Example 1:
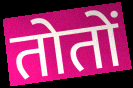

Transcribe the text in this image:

तोतों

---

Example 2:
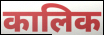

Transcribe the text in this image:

कालिक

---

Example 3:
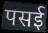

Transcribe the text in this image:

पसई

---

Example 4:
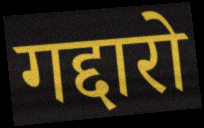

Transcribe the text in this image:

गद्दारो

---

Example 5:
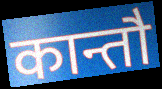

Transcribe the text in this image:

कान्तौ